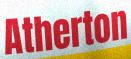
Atherton